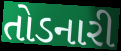
તોડનારી